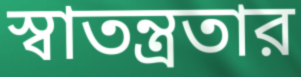
স্বাতন্ত্রতার